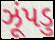
ઝૂંપડુ